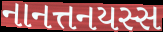
નાનત્તનયસ્સ